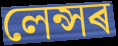
লেন্সৰ